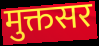
मुक्तसर